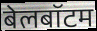
बेलबॉटम